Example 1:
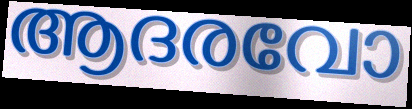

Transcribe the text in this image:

ആദരവോ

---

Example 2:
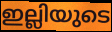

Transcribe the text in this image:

ഇല്ലിയുടെ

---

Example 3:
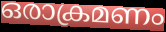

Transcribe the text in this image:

ഒരാക്രമണം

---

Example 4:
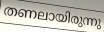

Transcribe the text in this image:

തണലായിരുന്നു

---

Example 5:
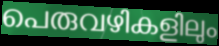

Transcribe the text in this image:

പെരുവഴികളിലും